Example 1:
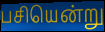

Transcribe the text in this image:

பசியென்று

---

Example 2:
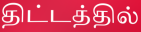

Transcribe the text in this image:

திட்டத்தில்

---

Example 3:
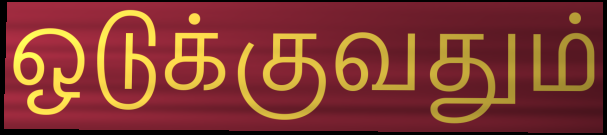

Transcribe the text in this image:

ஒடுக்குவதும்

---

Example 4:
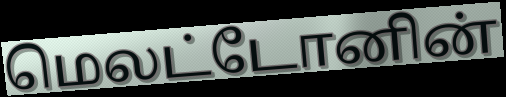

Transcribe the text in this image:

மெலட்டோனின்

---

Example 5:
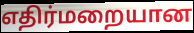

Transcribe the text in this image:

எதிர்மறையான